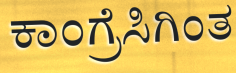
ಕಾಂಗ್ರೆಸಿಗಿಂತ